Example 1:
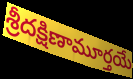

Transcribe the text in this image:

శ్రీదక్షిణామూర్తయే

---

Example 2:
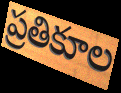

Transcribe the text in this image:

ప్రతికూల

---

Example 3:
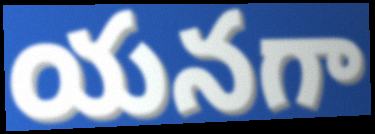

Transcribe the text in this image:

యనగా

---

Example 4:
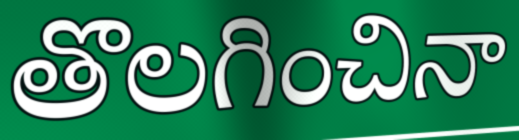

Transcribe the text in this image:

తొలగించినా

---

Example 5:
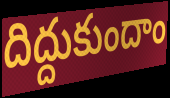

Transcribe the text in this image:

దిద్దుకుందాం